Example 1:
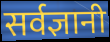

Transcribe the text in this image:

सर्वज्ञानी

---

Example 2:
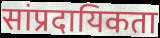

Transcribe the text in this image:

सांप्रदायिकता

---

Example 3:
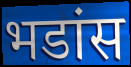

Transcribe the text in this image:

भडांस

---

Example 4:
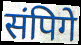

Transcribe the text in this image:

संपिगे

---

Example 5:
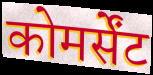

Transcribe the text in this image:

कोमर्सेंट